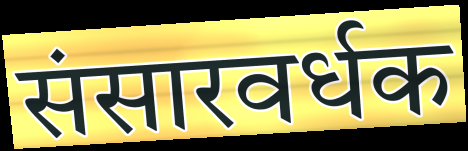
संसारवर्धक